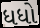
ધધો